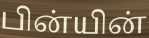
பின்யின்